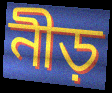
নীড়